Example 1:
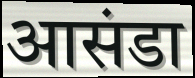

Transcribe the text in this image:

आसंडा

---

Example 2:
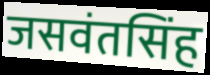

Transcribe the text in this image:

जसवंतसिंह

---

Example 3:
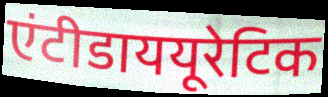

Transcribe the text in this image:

एंटीडाययूरेटिक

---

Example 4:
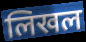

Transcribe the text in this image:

लिखल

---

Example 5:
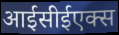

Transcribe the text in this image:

आईसीईएक्स